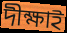
দীক্ষাই